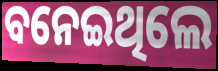
ବନେଇଥିଲେ